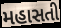
મહાસતી